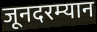
जूनदरम्यान